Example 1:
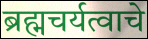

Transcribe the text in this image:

ब्रह्मचर्यत्वाचे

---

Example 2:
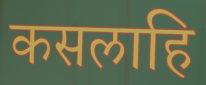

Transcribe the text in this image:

कसलाहि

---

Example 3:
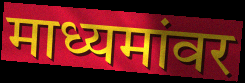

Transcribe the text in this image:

माध्यमांवर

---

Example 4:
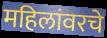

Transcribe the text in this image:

महिलांवरचे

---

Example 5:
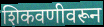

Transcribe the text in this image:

शिकवणीवरून